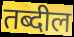
तब्‍दील